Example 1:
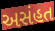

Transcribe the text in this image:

અસંહત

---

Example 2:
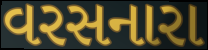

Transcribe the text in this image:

વરસનારા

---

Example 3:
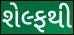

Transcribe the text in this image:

શેલ્ફથી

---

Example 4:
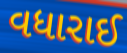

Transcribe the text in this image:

વધારાઈ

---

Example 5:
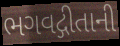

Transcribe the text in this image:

ભગવદ્ગીતાની